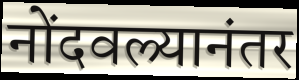
नोंदवल्यानंतर